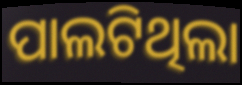
ପାଲଟିଥିଲା